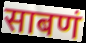
साबणं